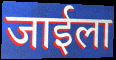
जाईला